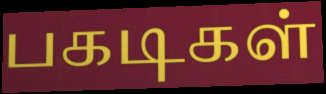
பகடிகள்